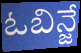
ఓబిన్జే